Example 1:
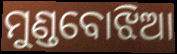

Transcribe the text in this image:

ମୁଣ୍ଡବୋଝିଆ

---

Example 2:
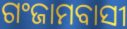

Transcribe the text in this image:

ଗଂଜାମବାସୀ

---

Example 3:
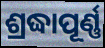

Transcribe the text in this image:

ଶ୍ରଦ୍ଧାପୂର୍ଣ୍ଣ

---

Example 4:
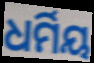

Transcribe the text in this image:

ଧର୍ମିୟ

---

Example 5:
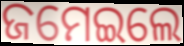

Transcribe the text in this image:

ଜମେଇଲେ